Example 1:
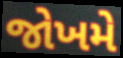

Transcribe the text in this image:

જોખમે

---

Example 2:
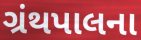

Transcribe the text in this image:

ગ્રંથપાલના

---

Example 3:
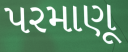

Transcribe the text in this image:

પરમાણૂ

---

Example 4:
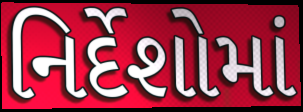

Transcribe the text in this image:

નિર્દેશોમાં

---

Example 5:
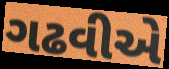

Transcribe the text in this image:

ગઢવીએ